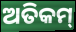
ଅତିକମ୍